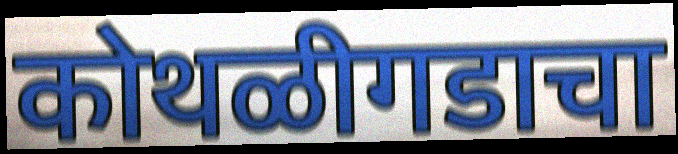
कोथळीगडाचा